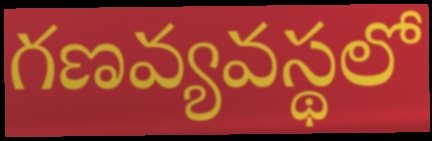
గణవ్యవస్థలో